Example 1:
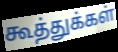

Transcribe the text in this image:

கூத்துக்கள்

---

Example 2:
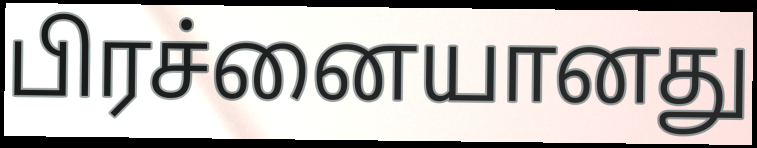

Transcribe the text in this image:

பிரச்னையானது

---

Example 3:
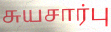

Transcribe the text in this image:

சுயசார்பு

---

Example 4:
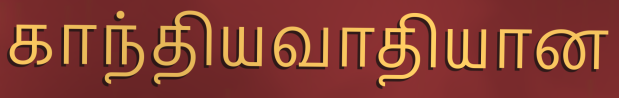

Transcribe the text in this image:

காந்தியவாதியான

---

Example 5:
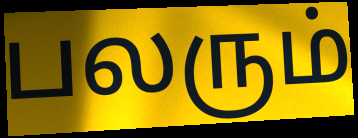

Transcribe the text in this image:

பலரும்